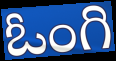
ఓంగి